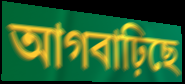
আগবাঢ়িছে